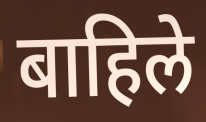
बाहिले